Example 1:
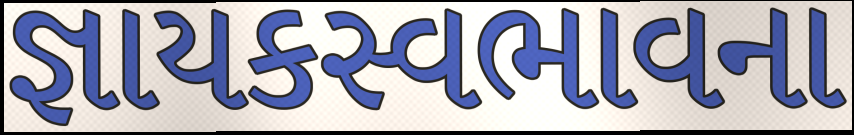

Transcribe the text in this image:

જ્ઞાયકસ્વભાવના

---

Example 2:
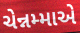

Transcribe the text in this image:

ચેન્નમ્માએ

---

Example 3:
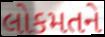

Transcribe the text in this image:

લોકમતને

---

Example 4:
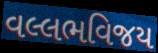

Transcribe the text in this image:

વલ્લભવિજય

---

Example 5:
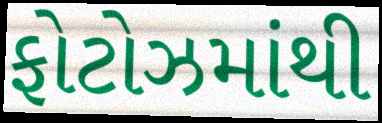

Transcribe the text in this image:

ફોટોઝમાંથી